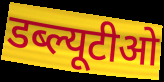
डब्ल्यूटीओ